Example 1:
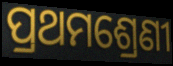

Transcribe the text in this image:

ପ୍ରଥମଶ୍ରେଣୀ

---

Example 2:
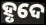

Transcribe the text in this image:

ହୃଦେ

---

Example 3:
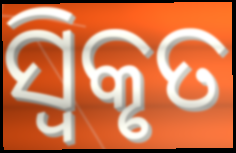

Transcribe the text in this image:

ସ୍ୱିକୃତ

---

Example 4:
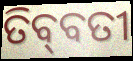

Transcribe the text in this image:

ତିବ୍‌ବତୀ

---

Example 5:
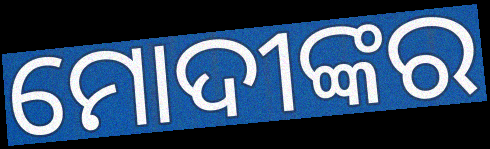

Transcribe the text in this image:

ମୋଦୀଙ୍କର